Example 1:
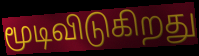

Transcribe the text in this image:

மூடிவிடுகிறது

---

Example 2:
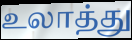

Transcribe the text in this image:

உலாத்து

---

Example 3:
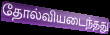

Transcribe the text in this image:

தோல்வியடைந்தது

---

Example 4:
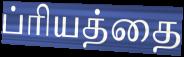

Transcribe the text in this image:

ப்ரியத்தை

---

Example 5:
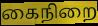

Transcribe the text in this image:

கைநிறை